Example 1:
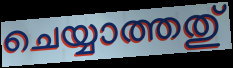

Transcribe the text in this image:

ചെയ്യാത്തതു്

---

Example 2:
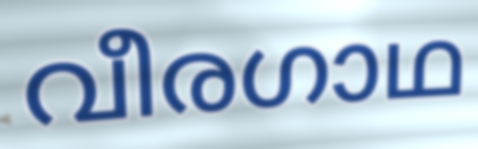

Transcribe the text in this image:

വീരഗാഥ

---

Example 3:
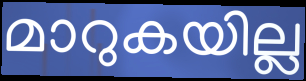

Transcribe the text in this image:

മാറുകയില്ല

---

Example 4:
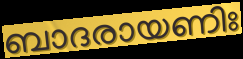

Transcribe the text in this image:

ബാദരായണിഃ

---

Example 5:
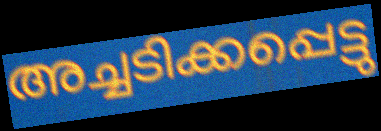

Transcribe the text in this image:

അച്ചടിക്കപ്പെട്ടു